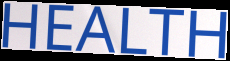
HEALTH